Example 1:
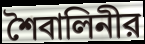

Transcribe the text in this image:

শৈবালিনীর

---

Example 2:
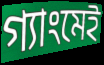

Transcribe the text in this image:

গ্যাংমেই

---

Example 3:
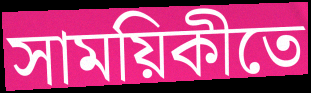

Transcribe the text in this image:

সাময়িকীতে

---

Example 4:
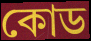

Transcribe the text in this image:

কোড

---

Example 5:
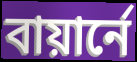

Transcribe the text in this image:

বায়ার্নে